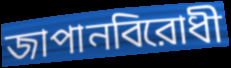
জাপানবিরোধী